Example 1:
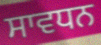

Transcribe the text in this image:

ਸਾਵਧਨ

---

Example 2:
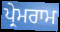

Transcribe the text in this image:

ਪ੍ਰੇਮਰਾਮ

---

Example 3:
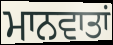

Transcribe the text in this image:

ਮਾਨਵਾਤਾਂ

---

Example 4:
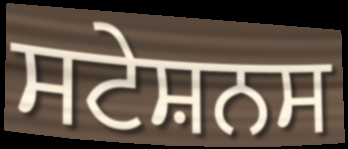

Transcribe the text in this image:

ਸਟੇਸ਼ਨਸ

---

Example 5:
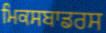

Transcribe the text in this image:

ਮਿਕਸਬਾਡਰਸ